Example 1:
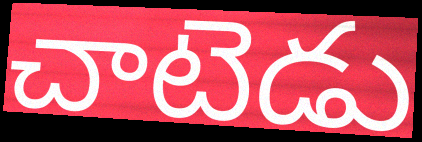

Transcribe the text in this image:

చాటెడు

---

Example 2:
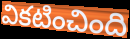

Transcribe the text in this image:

వికటించింది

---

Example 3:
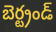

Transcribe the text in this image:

బెర్ట్రండ్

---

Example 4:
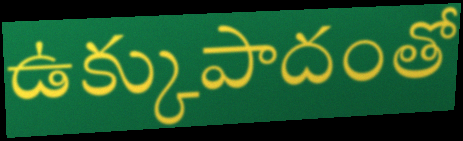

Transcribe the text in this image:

ఉక్కుపాదంతో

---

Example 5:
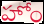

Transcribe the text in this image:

హోం